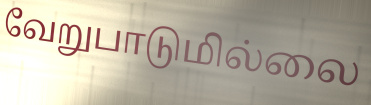
வேறுபாடுமில்லை